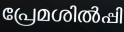
പ്രേമശിൽപ്പി